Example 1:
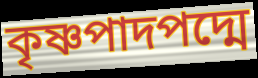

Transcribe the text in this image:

কৃষ্ণপাদপদ্মে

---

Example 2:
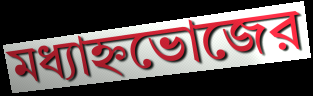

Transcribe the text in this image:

মধ্যাহ্নভোজের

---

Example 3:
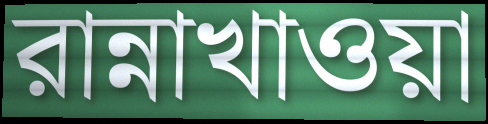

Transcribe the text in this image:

রান্নাখাওয়া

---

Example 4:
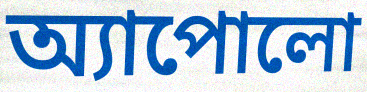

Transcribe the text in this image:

অ্যাপোলো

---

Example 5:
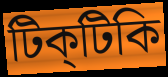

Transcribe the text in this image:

টিক্‌টিকি